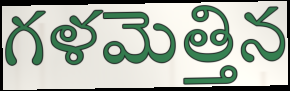
గళమెత్తిన